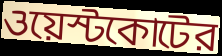
ওয়েস্টকোটের